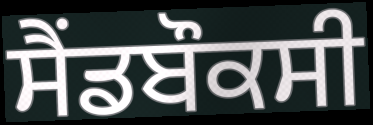
ਸੈਂਡਬੌਕਸੀ